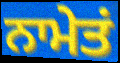
ਨਾਮੇਤਂ